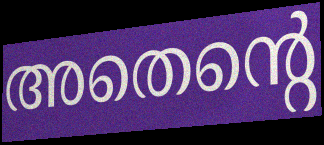
അതെന്റെ